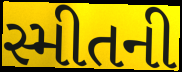
સ્મીતની